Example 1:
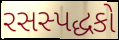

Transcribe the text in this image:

રસસ્પદ્ધકો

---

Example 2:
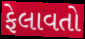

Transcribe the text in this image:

ફેલાવતો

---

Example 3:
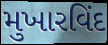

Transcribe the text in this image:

મુખારવિંદ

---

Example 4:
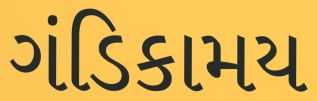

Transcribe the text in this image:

ગંડિકામય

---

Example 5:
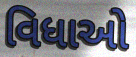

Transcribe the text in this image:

વિધાઓ